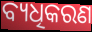
ବ୍ୟଧିକରଣ